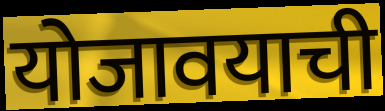
योजावयाची